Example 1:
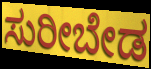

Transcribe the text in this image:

ಸುರೀಬೇಡ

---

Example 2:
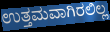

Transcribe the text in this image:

ಉತ್ತಮವಾಗಿರಲಿಲ್ಲ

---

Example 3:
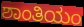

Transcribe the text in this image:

ಶಾಂತಿಯಂ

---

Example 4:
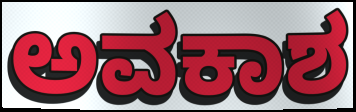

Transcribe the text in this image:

ಅವಕಾಶ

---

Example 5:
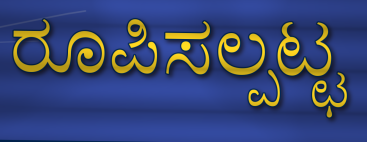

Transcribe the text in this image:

ರೂಪಿಸಲ್ಪಟ್ಟ